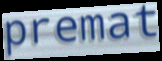
premat